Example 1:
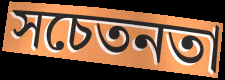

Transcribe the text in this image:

সচেতনতা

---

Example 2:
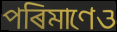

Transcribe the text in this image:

পৰিমাণেও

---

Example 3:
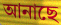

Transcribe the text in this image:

আনাছে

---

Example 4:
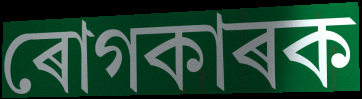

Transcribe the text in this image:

ৰোগকাৰক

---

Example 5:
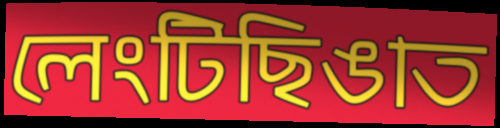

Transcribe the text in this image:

লেংটিছিঙাত